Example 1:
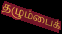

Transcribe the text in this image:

தழும்பைக்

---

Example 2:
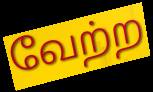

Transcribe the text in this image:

வேற்ற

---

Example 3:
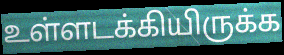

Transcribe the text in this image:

உள்ளடக்கியிருக்க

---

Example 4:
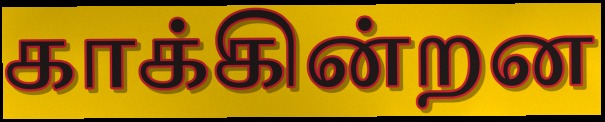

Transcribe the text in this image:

காக்கின்றன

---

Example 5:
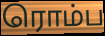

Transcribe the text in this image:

ரொம்ப